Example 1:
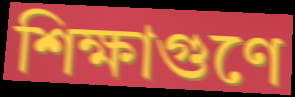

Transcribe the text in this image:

শিক্ষাগুণে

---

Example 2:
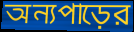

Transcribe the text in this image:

অন্যপাড়ের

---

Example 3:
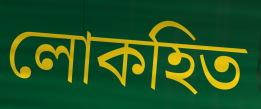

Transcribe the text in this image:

লোকহিত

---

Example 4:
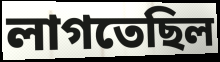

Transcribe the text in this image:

লাগতেছিল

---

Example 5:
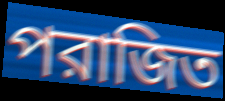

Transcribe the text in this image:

পরাজিত